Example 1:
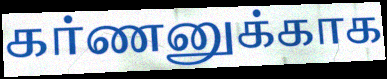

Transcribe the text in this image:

கர்ணனுக்காக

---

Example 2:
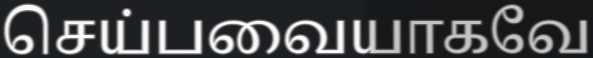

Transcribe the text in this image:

செய்பவையாகவே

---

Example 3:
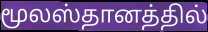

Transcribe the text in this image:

மூலஸ்தானத்தில்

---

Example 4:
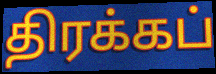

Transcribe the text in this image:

திரக்கப்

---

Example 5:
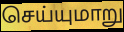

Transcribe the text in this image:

செய்யுமாறு